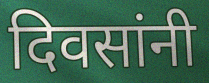
दिवसांनी